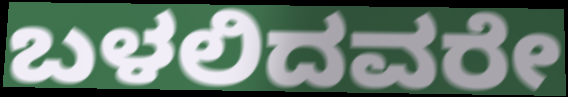
ಬಳಲಿದವರೇ